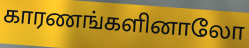
காரணங்களினாலோ